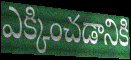
ఎక్కించడానికి